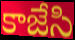
కాజేసి